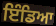
ਇੰਡਿਆ